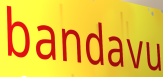
bandavu